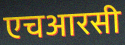
एचआरसी